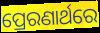
ପ୍ରେରଣାର୍ଥରେ